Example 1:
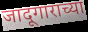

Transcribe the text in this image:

जादूगाराच्या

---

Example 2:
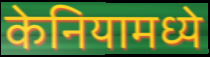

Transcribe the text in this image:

केनियामध्ये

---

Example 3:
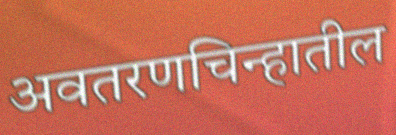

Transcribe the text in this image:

अवतरणचिन्हातील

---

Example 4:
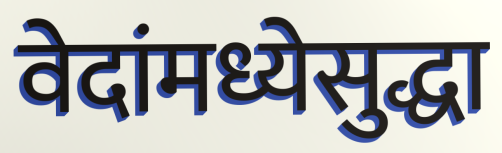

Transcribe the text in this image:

वेदांमध्येसुद्धा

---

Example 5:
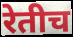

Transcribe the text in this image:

रेतीच